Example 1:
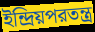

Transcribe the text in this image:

ইন্দ্রিয়পরতন্ত্র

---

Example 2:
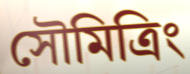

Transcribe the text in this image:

সৌমিত্রিং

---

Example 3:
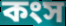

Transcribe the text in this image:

কংস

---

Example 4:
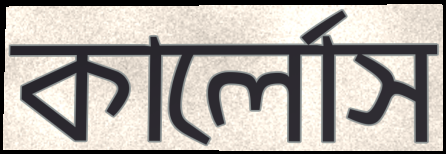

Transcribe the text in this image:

কার্লোস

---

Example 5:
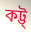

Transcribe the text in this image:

কট্ট্